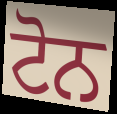
ਟੋਨ